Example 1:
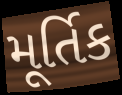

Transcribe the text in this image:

મૂર્તિક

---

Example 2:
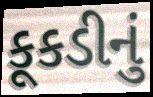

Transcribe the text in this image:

કૂકડીનું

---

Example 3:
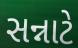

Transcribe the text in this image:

સન્નાટે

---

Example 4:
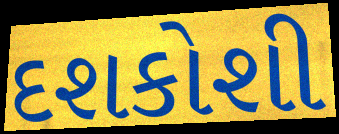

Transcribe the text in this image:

દશકોશી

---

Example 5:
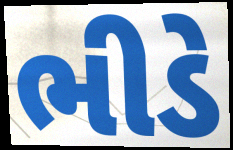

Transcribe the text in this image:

ભીડે